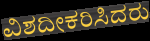
ವಿಶದೀಕರಿಸಿದರು